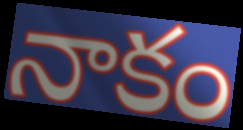
నాకం